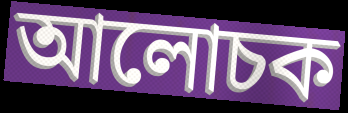
আলোচক